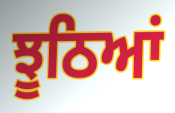
ਝੂਠਿਆਂ